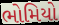
ભોમિયો